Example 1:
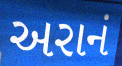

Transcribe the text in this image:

અરાનં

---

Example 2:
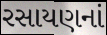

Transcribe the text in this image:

રસાયણનાં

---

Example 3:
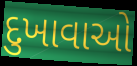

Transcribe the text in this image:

દુખાવાઓ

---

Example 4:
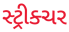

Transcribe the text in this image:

સ્ટ્રીક્ચર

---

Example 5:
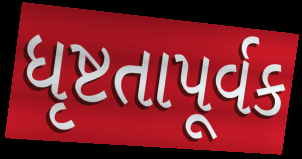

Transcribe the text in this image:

ધૃષ્ટતાપૂર્વક